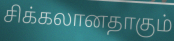
சிக்கலானதாகும்